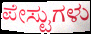
ಪೇಸ್ಟುಗಳು